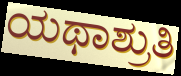
ಯಥಾಶ್ರುತಿ